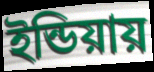
ইন্ডিয়ায়